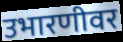
उभारणीवर